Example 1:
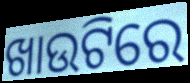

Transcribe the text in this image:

ଖାଉଟିରେ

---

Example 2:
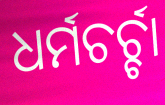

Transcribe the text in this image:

ଧର୍ମଚର୍ଚ୍ଚା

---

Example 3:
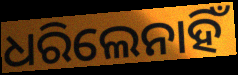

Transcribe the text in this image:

ଧରିଲେନାହିଁ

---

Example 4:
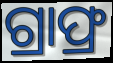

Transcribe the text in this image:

ଗ୍ରାଫ୍ର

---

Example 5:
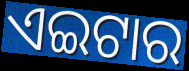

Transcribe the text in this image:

ଏଇଟାର